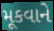
મૂકવાને